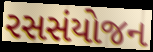
રસસંયોજન